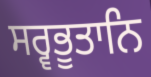
ਸਰ੍ਵਭੂਤਾਨਿ